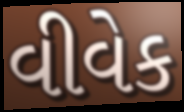
વીવેક